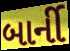
બાર્ની